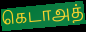
கெடாஅத்